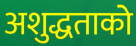
अशुद्धताको